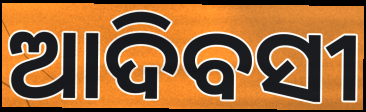
ଆଦିବସୀ